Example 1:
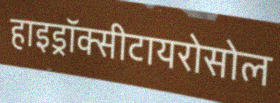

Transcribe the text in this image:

हाइड्रॉक्सीटायरोसोल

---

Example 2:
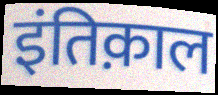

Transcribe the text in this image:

इंतिक़ाल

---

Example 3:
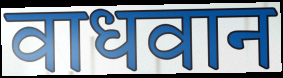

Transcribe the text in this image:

वाधवान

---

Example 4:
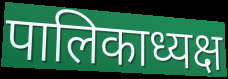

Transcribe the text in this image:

पालिकाध्यक्ष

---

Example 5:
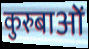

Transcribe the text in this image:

कुरुबाओं